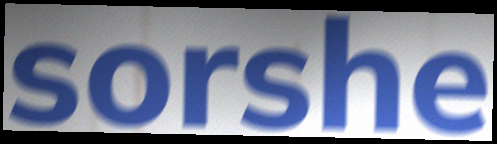
sorshe